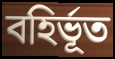
বহিৰ্ভূত